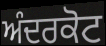
ਅੰਦਰਕੋਟ